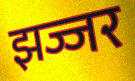
झज्जर